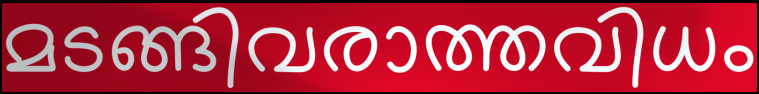
മടങ്ങിവരാത്തവിധം